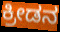
ಕ್ರೀಡನ